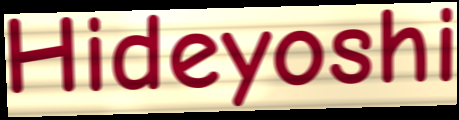
Hideyoshi